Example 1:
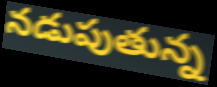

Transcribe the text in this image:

నడుపుతున్న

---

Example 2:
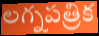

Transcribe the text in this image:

లగ్నపత్రిక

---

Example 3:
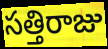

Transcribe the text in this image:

సత్తిరాజు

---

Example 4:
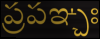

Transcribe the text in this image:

ప్రపఞ్చః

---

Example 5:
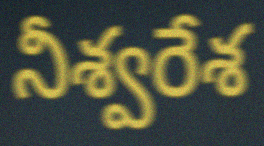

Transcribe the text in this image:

నీశ్వరేశ